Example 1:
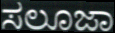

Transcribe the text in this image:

ಸಲೂಜಾ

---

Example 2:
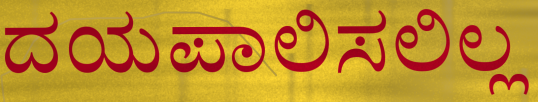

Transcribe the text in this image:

ದಯಪಾಲಿಸಲಿಲ್ಲ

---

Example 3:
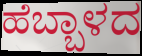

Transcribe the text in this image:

ಹೆಬ್ಬಾಳದ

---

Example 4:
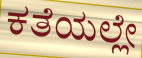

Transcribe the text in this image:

ಕತೆಯಲ್ಲೇ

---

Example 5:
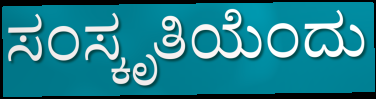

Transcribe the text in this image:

ಸಂಸ್ಕೃತಿಯೆಂದು